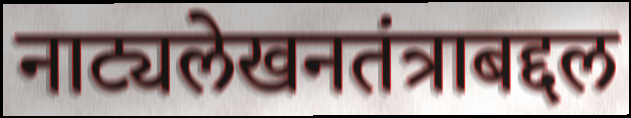
नाट्यलेखनतंत्राबद्दल